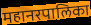
महानरपालिका